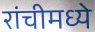
रांचीमध्ये